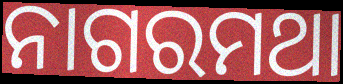
ନାଗରମଥା